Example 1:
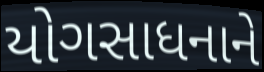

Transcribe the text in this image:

યોગસાધનાને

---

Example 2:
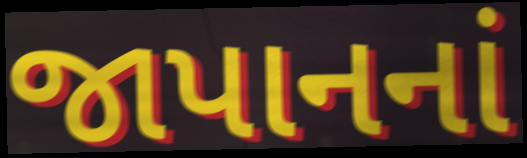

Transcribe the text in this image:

જાપાનનાં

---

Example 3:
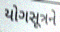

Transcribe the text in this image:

યોગસૂત્રને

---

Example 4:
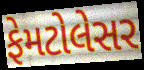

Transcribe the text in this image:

ફેમટોલેસર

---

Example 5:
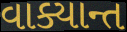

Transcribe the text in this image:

વાક્યાન્ત